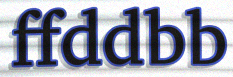
ffddbb